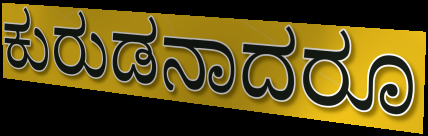
ಕುರುಡನಾದರೂ